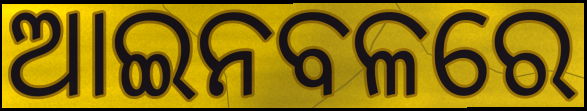
ଆଇନବଳରେ